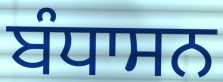
ਬੰਧਾਸਨ